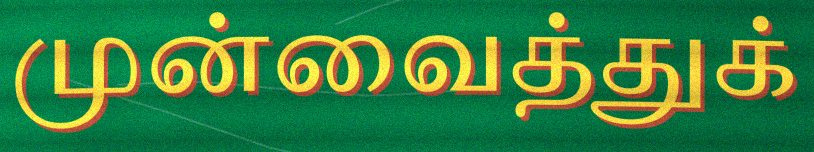
முன்வைத்துக்